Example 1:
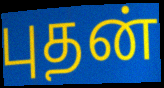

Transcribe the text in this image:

புதன்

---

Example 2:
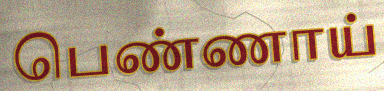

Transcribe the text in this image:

பெண்ணாய்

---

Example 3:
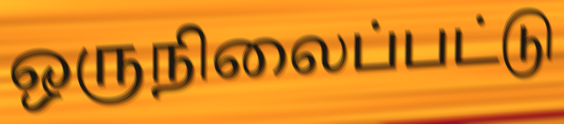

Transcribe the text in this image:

ஒருநிலைப்பட்டு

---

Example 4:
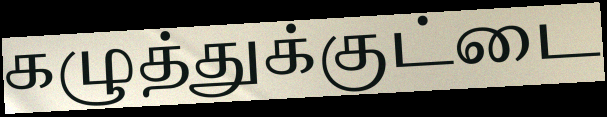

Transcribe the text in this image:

கழுத்துக்குட்டை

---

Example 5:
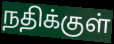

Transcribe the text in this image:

நதிக்குள்